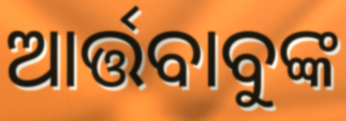
ଆର୍ତ୍ତବାବୁଙ୍କ